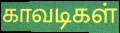
காவடிகள்